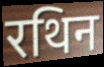
रथिन